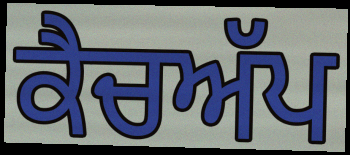
ਕੈਚਅੱਪ